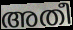
അതീ